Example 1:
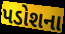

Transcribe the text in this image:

પડોશના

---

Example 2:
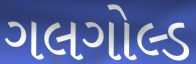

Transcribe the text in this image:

ગલગોલ્ડ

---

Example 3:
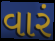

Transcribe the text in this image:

વારં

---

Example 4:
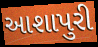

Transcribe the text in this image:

આશાપુરી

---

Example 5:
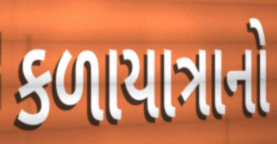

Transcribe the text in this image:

કળાયાત્રાનો